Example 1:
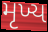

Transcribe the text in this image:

મૃખ્ય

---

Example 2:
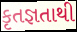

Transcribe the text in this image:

કૃતજ્ઞતાથી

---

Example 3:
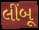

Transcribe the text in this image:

લીંબૂ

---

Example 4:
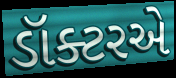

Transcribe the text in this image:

ડૉક્ટરએ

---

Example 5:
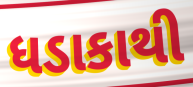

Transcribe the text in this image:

ધડાકાથી